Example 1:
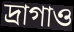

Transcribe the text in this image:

দ্রাগাও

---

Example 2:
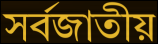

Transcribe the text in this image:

সর্বজাতীয়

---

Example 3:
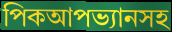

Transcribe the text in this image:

পিকআপভ্যানসহ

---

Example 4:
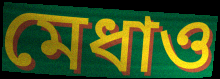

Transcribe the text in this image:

মেধাও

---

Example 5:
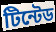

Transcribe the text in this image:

টিন্টেড